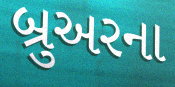
બ્રુઅરના